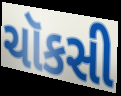
ચૉકસી